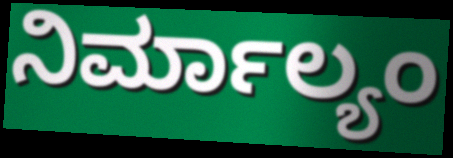
ನಿರ್ಮಾಲ್ಯಂ